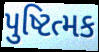
પુષ્ટિત્મક